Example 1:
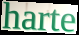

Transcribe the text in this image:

harte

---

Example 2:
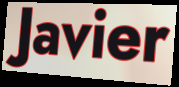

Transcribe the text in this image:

Javier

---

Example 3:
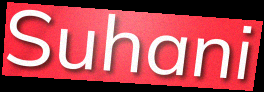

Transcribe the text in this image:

Suhani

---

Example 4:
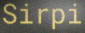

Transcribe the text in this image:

Sirpi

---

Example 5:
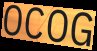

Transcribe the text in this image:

OCOG